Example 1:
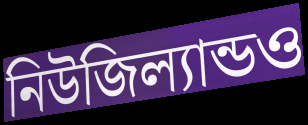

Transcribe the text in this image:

নিউজিল্যান্ডও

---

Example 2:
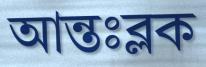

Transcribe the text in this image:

আন্তঃব্লক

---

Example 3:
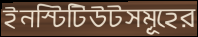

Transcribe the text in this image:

ইনস্টিটিউটসমূহের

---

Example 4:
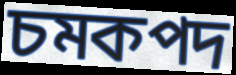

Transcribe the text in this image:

চমকপদ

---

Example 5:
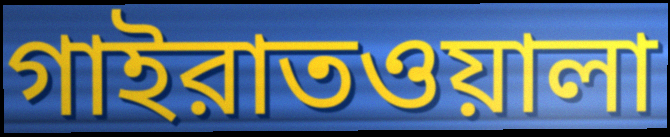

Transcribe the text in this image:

গাইরাতওয়ালা